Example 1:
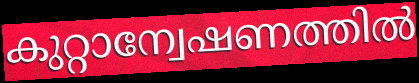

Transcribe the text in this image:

കുറ്റാന്വേഷണത്തിൽ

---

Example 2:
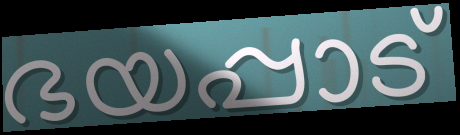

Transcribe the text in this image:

ഭയപ്പാട്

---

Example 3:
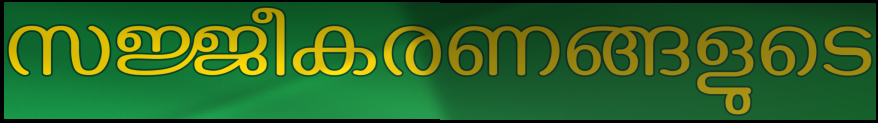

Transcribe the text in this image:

സജ്ജീകരണങ്ങളുടെ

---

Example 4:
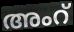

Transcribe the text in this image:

അംറ്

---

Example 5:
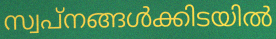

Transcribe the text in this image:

സ്വപ്നങ്ങൾക്കിടയിൽ